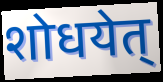
शोधयेत्